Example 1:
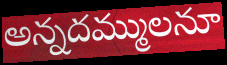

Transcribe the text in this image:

అన్నదమ్ములనూ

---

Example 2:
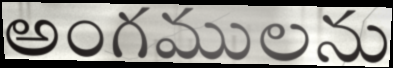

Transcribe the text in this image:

అంగములను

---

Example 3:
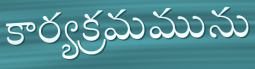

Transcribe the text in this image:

కార్యక్రమమును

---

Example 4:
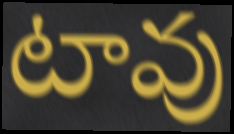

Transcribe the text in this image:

టావు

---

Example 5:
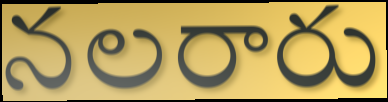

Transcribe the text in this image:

నలరారు